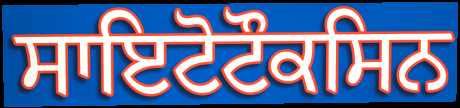
ਸਾਇਟੋਟੌਕਸਿਨ